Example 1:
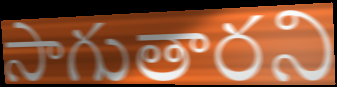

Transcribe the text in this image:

సాగుతారని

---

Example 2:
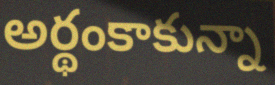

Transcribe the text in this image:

అర్థంకాకున్నా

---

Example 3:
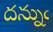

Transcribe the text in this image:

దన్నుఁ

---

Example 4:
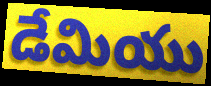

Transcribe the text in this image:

డేమియు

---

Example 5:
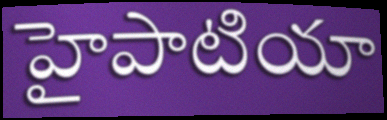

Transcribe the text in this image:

హైపాటియా